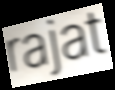
rajat